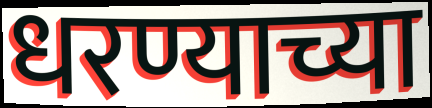
धरण्याच्या